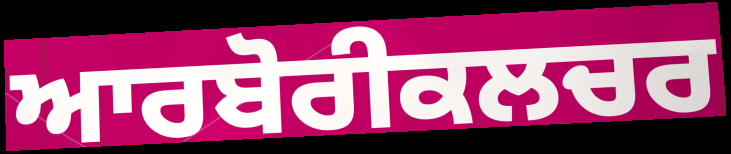
ਆਰਬੋਰੀਕਲਚਰ